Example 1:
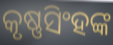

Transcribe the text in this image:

କୃଷ୍ଣସିଂହଙ୍କ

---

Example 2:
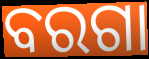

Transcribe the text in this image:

ବରଗା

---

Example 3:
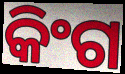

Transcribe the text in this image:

କିଂଗ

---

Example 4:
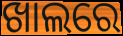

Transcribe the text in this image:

ଖାଲରେ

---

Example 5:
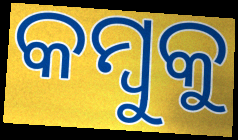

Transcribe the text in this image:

କମ୍ବୁକୁ